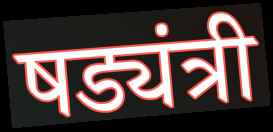
षड्यंत्री